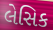
લેસિક